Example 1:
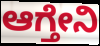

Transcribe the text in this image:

ಆಗ್ತೇನಿ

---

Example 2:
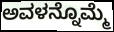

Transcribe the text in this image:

ಅವಳನ್ನೊಮ್ಮೆ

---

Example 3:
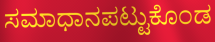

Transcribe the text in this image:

ಸಮಾಧಾನಪಟ್ಟುಕೊಂಡ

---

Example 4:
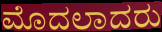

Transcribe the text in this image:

ಮೊದಲಾದರು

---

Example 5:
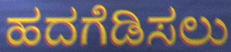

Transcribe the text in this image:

ಹದಗೆಡಿಸಲು